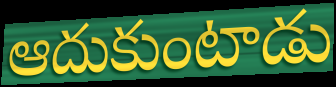
ఆదుకుంటాడు